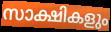
സാക്ഷികളും